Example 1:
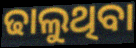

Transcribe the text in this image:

ଢାଲୁଥିବା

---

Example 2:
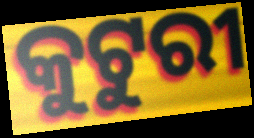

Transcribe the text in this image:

କୁଟୁରୀ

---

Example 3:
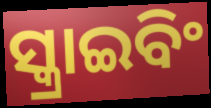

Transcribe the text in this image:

ସ୍କ୍ରାଇବିଂ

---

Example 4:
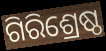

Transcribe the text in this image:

ଗିରିଶ୍ରେଷ୍ଠ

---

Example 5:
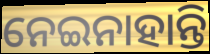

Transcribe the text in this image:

ନେଇନାହାନ୍ତି